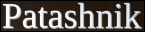
Patashnik